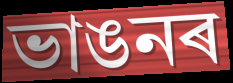
ভাঙনৰ